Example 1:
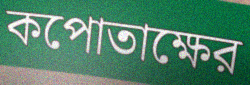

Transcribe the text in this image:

কপোতাক্ষের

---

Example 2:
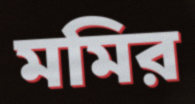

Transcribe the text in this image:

মমির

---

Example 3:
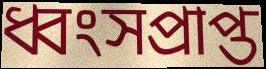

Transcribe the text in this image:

ধ্বংসপ্রাপ্ত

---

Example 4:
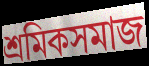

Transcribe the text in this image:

শ্রমিকসমাজ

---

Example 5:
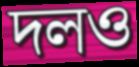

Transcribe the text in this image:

দলও